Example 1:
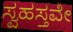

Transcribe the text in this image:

ಸ್ವಹಸ್ತವೇ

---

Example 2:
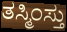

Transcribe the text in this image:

ತಸ್ಮಿಂಸ್ತು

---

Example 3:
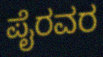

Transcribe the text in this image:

ಪೈರವರ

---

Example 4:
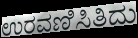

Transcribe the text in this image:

ಉರವಣಿಸಿತಿದು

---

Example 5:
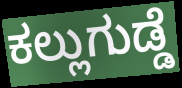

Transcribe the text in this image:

ಕಲ್ಲುಗುಡ್ಡೆ